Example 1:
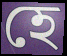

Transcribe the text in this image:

হে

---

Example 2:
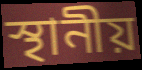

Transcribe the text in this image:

স্থানীয়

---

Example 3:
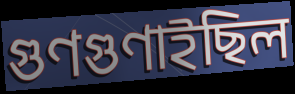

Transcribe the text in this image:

গুণগুণাইছিল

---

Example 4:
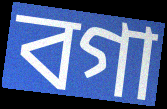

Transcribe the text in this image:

বগা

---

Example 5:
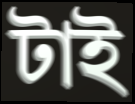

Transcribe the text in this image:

টাই